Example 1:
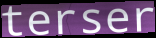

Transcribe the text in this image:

terser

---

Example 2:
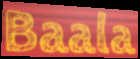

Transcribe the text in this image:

Baala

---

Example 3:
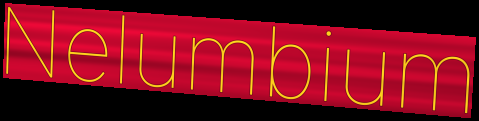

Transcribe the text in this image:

Nelumbium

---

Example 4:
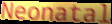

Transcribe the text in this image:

Neonatal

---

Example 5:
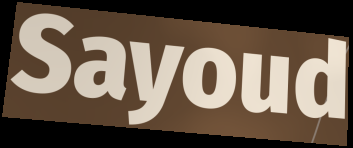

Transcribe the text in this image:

Sayoud